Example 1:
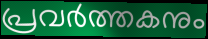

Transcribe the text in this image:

പ്രവർത്തകനും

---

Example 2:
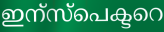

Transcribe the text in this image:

ഇന്സ്പെക്ടറെ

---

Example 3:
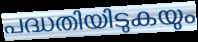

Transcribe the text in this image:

പദ്ധതിയിടുകയും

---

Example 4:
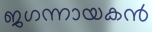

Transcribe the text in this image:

ജഗന്നായകൻ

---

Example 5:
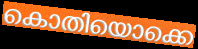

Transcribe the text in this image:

കൊതിയൊക്കെ